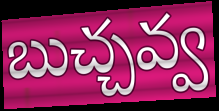
బుచ్చవ్వ